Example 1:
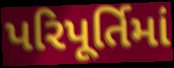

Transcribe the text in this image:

પરિપૂર્તિમાં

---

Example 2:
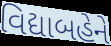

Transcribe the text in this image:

વિદ્યાબહેને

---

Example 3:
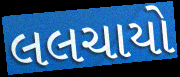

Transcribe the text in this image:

લલચાયો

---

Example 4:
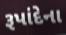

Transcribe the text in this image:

રૂપાંદેના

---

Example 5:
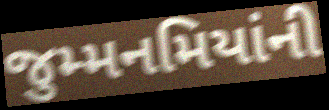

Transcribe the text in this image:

જુમ્મનમિયાંની